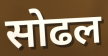
सोढल